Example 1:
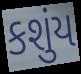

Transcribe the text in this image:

કશુંય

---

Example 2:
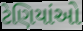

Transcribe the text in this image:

ટેણિયાંઓ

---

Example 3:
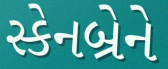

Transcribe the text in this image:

સ્કેનબ્રેને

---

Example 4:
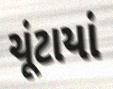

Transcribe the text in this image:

ચૂંટાયાં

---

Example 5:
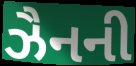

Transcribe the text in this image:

ઝૈનની